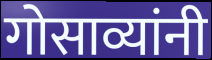
गोसाव्यांनी